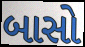
બાસો